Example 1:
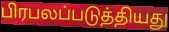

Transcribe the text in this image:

பிரபலப்படுத்தியது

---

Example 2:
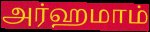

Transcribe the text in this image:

அர்ஹமாம்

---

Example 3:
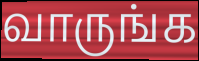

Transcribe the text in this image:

வாருங்க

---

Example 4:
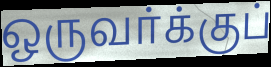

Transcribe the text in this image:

ஒருவர்க்குப்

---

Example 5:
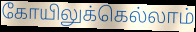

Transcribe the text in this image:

கோயிலுக்கெல்லாம்